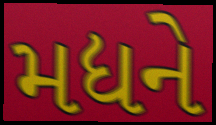
મદ્યને